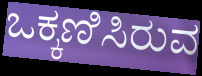
ಒಕ್ಕಣಿಸಿರುವ